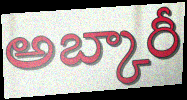
అబ్కారీ